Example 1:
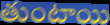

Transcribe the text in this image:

తుంటాయి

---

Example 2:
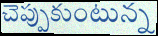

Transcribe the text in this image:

చెప్పుకుంటున్న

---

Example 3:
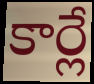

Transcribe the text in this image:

కార్లే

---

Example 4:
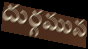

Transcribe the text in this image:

దుర్గమున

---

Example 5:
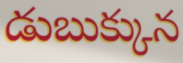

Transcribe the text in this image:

డుబుక్కున